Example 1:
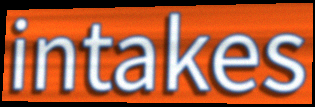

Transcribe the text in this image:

intakes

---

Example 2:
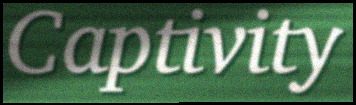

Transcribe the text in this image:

Captivity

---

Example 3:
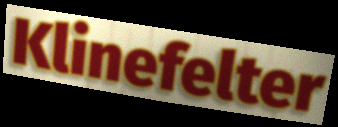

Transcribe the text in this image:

Klinefelter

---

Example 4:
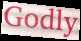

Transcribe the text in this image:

Godly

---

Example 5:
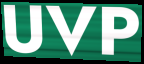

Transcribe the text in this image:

UVP